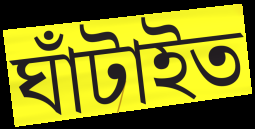
ঘাঁটাইত